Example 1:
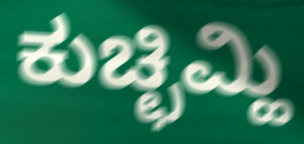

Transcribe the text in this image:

ಕುಚ್ಛಿಮ್ಹಿ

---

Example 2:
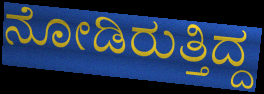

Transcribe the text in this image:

ನೋಡಿರುತ್ತಿದ್ದ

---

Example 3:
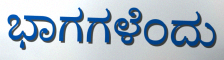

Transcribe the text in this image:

ಭಾಗಗಳೆಂದು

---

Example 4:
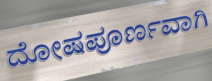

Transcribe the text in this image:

ದೋಷಪೂರ್ಣವಾಗಿ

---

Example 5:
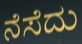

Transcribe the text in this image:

ನೆಸೆದು